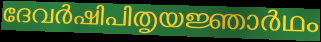
ദേവർഷിപിതൃയജ്ഞാർഥം